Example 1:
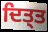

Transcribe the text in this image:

ਦਿਤ੍ਤ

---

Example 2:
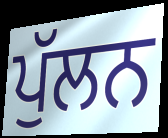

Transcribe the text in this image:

ਪੁੱਲਨ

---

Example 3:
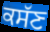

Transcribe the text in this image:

ਕਸੱਣ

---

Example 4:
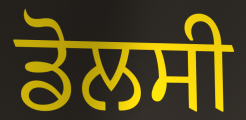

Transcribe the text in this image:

ਡੋਲਸੀ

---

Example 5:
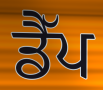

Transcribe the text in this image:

ਡੈੱਪ